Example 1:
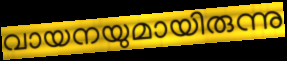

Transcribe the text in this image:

വായനയുമായിരുന്നു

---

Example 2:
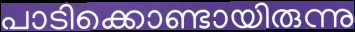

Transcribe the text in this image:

പാടിക്കൊണ്ടായിരുന്നു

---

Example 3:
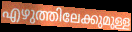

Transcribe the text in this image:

എഴുത്തിലേക്കുമുള്ള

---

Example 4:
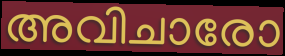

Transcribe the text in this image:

അവിചാരോ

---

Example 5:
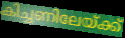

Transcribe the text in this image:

കിച്ചണിലേയ്ക്ക്